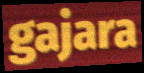
gajara